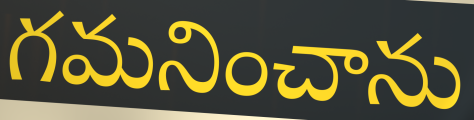
గమనించాను